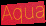
Aqua